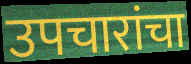
उपचारांचा